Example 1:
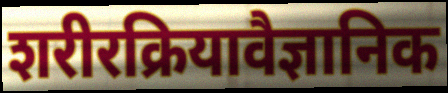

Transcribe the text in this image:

शरीरक्रियावैज्ञानिक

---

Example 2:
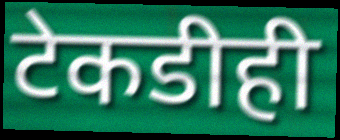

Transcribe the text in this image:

टेकडीही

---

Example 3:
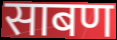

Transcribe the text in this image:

साबण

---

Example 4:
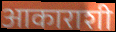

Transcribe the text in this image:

आकाराशी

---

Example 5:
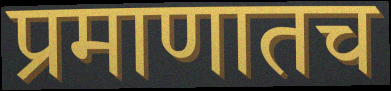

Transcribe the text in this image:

प्रमाणातच